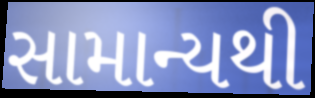
સામાન્યથી